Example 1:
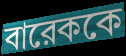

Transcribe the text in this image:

বারেককে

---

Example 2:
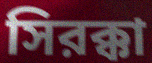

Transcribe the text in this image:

সিরক্কা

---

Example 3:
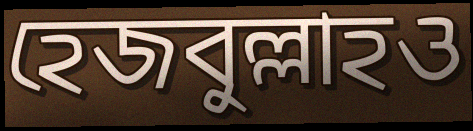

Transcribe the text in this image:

হেজবুল্লাহও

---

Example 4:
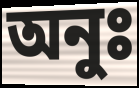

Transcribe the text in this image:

অনুঃ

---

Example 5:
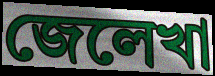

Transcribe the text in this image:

জেলেখা